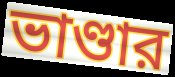
ভাণ্ডার